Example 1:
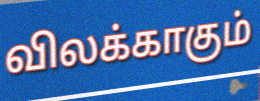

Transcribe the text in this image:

விலக்காகும்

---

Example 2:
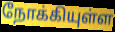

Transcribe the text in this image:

நோக்கியுள்ள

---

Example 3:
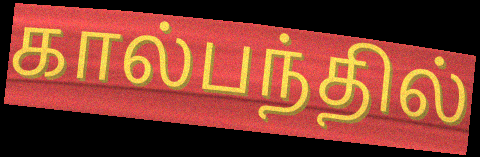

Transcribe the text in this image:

கால்பந்தில்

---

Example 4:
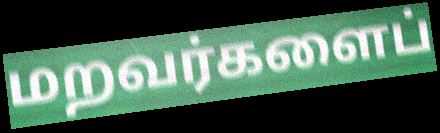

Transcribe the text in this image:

மறவர்களைப்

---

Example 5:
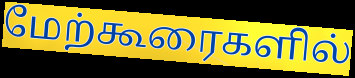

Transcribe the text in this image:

மேற்கூரைகளில்